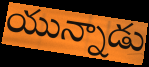
యున్నాడు